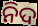
ନିଦ